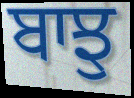
ਬਾਝੁ